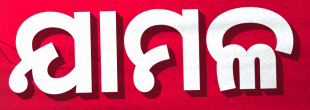
ଯାମଳ